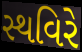
સ્થવિરે